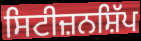
ਸਿਟੀਜ਼ਨਸ਼ਿੱਪ